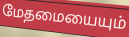
மேதமையையும்